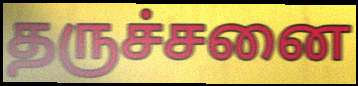
தருச்சனை